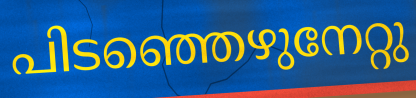
പിടഞ്ഞെഴുനേറ്റു